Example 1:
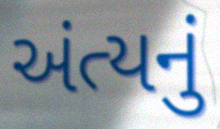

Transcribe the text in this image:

અંત્યનું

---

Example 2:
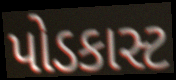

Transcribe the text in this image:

પોડકાસ્ટ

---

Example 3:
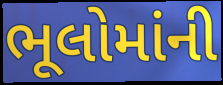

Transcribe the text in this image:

ભૂલોમાંની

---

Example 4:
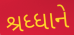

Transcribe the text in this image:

શ્રધ્ધાને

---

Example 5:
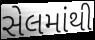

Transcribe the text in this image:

સેલમાંથી